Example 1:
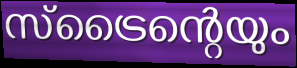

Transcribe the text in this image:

സ്ട്രൈന്റെയും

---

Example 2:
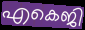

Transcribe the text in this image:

എകെജി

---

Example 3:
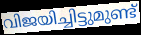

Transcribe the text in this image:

വിജയിച്ചിട്ടുമുണ്ട്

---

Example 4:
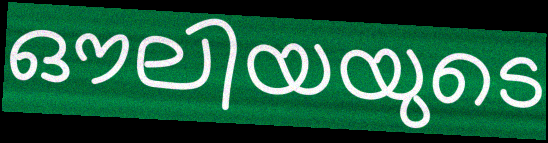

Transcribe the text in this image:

ഔലിയയുടെ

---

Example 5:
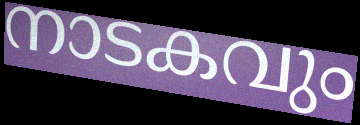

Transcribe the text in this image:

നാടകവും